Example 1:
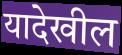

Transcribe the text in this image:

यादेखील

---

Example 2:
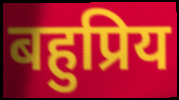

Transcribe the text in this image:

बहुप्रिय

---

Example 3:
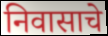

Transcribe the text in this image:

निवासाचे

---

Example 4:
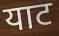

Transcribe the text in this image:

याट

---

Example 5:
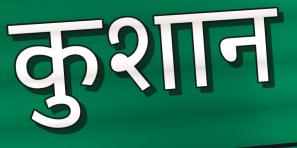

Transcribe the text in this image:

कुशान